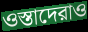
ওস্তাদেরাও